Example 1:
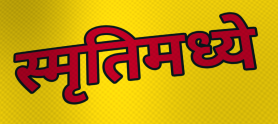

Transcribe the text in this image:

स्मृतिमध्ये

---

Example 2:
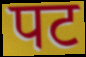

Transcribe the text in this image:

पट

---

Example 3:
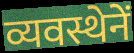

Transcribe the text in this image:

व्यवस्थेनें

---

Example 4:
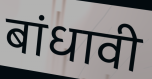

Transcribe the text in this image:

बांधावी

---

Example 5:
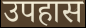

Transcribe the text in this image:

उपहास